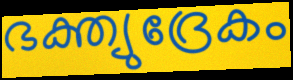
ഭക്ത്യുദ്രേകം